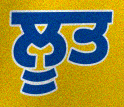
ਲੂਤ